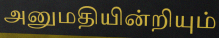
அனுமதியின்றியும்